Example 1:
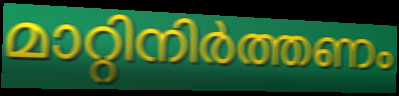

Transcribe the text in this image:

മാറ്റിനിർത്തണം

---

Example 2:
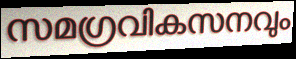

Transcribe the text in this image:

സമഗ്രവികസനവും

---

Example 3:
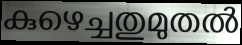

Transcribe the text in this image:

കുഴെച്ചതുമുതൽ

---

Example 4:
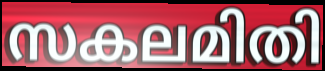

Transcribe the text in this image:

സകലമിതി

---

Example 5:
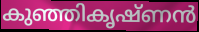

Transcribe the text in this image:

കുഞ്ഞികൃഷ്ണൻ